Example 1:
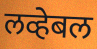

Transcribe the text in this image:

लव्हेबल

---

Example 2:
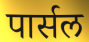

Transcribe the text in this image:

पार्सल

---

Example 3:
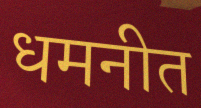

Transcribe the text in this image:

धमनीत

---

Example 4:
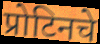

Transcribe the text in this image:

प्रोटिनचे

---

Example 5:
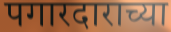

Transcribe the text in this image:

पगारदाराच्या